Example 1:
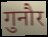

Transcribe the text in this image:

गुनौर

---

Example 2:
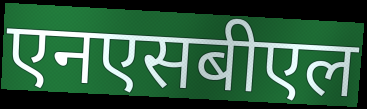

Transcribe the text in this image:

एनएसबीएल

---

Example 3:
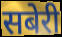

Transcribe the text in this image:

सबेरी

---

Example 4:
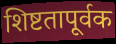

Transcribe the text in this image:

शिष्टतापूर्वक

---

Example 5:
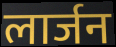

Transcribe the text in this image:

लार्जन